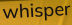
whisper